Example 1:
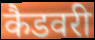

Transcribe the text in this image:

कैडवरी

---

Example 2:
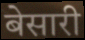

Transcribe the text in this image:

बेसारी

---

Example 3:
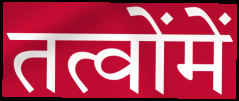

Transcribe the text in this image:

तत्वोंमें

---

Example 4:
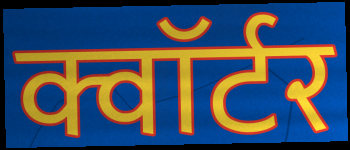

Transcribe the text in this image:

क्वॉर्टर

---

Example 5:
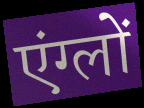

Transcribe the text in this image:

एंग्लों